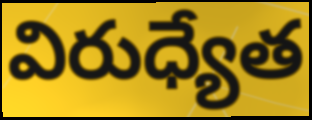
విరుధ్యేత